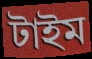
টাইম